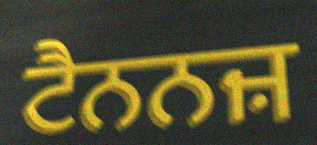
ਟੈਨਨਜ਼